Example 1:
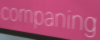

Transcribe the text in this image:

companing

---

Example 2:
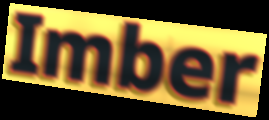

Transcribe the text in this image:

Imber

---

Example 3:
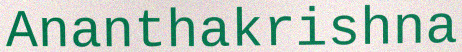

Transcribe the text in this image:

Ananthakrishna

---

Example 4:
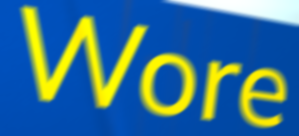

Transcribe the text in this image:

Wore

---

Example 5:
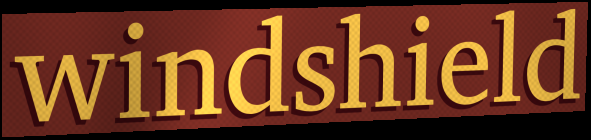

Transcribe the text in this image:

windshield